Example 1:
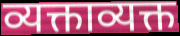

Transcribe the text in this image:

व्यक्ताव्यक्त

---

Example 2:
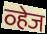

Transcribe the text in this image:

व्हेज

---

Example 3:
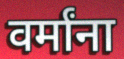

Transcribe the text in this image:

वर्मांना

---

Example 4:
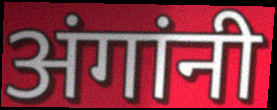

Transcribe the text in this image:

अंगांनी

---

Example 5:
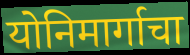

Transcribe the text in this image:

योनिमार्गाचा